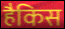
हैकिस